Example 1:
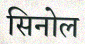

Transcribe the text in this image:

सिनोल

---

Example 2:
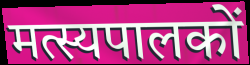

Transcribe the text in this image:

मत्स्यपालकों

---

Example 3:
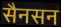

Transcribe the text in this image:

सैनसन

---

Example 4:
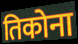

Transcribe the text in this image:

तिकोना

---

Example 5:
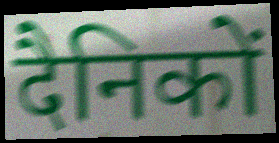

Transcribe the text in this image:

दैनिकों